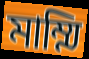
মাম্মি